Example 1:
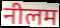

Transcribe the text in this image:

नीलम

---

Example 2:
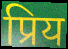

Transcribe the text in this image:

प्रिय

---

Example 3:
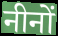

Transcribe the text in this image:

नीनों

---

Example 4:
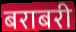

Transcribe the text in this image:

बराबरी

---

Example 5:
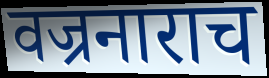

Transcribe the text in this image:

वज्रनाराच